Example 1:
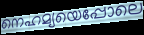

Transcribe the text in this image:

നെഹമ്യയെപ്പോലെ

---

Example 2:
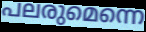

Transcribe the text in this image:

പലരുമെന്നെ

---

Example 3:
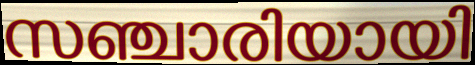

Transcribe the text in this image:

സഞ്ചാരിയായി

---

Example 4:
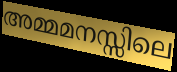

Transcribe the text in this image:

അമ്മമനസ്സിലെ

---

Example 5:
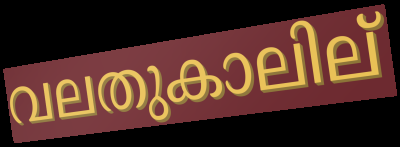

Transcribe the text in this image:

വലതുകാലില്